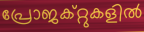
പ്രോജക്റ്റുകളിൽ